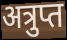
अत्रुप्त